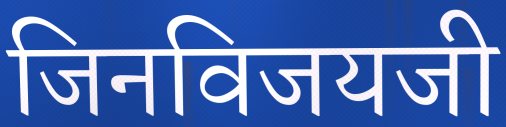
जिनविजयजी